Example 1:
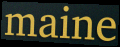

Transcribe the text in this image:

maine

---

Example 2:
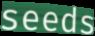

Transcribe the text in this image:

seeds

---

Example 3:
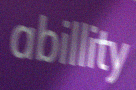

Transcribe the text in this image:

abillity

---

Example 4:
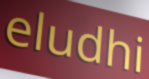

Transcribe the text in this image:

eludhi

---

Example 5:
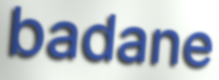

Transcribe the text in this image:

badane